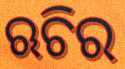
ଋଚିର